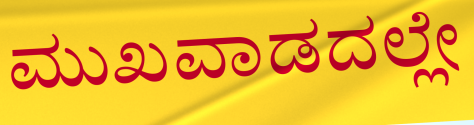
ಮುಖವಾಡದಲ್ಲೇ